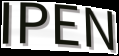
IPEN